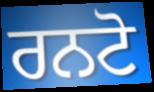
ਰਨਟੋ